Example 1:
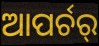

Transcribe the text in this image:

ଆପର୍ଚର୍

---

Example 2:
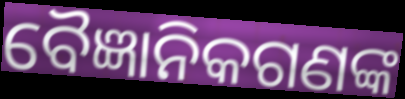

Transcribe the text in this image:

ବୈଜ୍ଞାନିକଗଣଙ୍କ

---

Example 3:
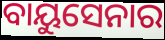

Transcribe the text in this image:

ବାୟୁସେନାର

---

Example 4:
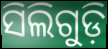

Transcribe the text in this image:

ସିଲିଗୁଡ଼ି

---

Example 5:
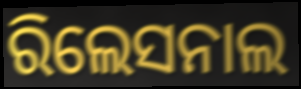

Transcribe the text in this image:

ରିଲେସନାଲ